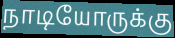
நாடியோருக்கு